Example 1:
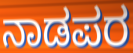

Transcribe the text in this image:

ನಾಡಪರ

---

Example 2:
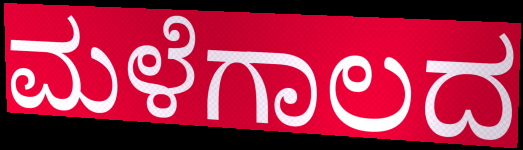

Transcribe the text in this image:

ಮಳೆಗಾಲದ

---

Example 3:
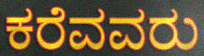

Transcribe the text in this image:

ಕರೆವವರು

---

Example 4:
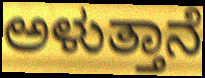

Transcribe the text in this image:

ಅಳುತ್ತಾನೆ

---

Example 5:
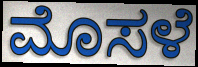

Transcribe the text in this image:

ಮೊಸಳೆ